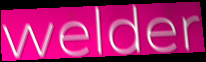
welder